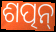
ଶତ୍ପନ୍